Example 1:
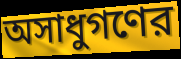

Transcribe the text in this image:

অসাধুগণের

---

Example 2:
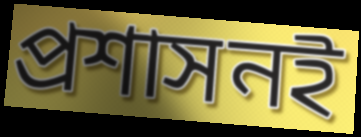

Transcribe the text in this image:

প্রশাসনই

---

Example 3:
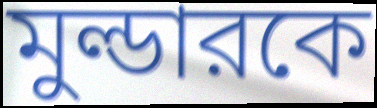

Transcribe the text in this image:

মুল্ডারকে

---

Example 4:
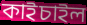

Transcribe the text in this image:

কাইচাইল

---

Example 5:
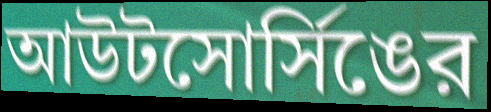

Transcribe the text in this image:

আউটসোর্সিঙের